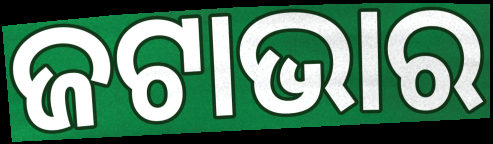
ଜଟାଭାର